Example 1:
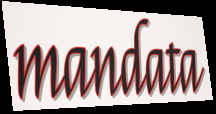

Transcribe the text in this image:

mandata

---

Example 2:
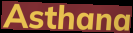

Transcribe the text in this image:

Asthana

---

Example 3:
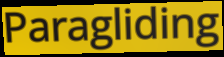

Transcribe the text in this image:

Paragliding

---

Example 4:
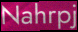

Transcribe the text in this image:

Nahrpj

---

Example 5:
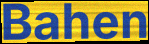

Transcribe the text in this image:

Bahen